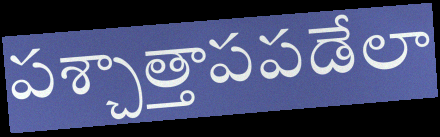
పశ్చాత్తాపపడేలా